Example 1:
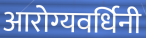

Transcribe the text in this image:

आरोग्यवर्धिनी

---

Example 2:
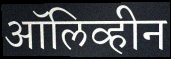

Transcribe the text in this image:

ऑलिव्हीन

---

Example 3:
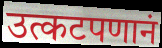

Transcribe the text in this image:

उत्कटपणानं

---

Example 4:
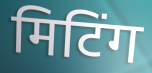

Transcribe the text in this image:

मिटिंग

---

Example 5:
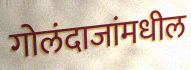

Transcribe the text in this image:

गोलंदाजांमधील